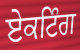
ਏਕਟਿੰਗ